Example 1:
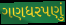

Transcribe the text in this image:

ગણધરપણું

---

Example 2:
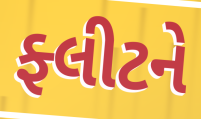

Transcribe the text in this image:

ફ્લીટને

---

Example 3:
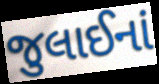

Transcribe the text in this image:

જુલાઈનાં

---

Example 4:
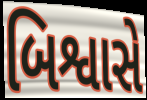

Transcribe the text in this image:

બિશ્વાસે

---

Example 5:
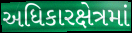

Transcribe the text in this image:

અધિકારક્ષેત્રમાં